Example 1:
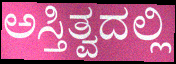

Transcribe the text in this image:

ಅಸ್ತಿತ್ವದಲ್ಲಿ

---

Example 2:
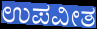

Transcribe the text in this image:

ಉಪವೀತ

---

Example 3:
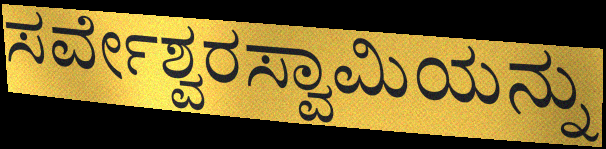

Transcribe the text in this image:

ಸರ್ವೇಶ್ವರಸ್ವಾಮಿಯನ್ನು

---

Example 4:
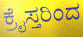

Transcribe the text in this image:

ಕ್ರೈಸ್ತರಿಂದ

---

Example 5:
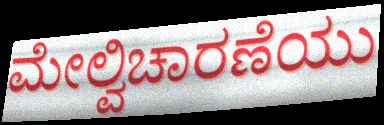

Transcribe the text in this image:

ಮೇಲ್ವಿಚಾರಣೆಯು